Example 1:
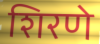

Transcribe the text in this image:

शिरणे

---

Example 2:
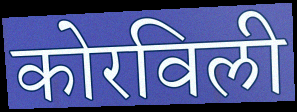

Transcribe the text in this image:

कोरविली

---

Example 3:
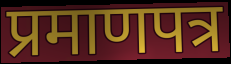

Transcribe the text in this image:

प्रमाणपत्र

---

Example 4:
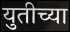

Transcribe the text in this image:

युतीच्या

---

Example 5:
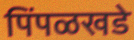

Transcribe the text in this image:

पिंपळखडे